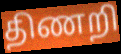
திணறி